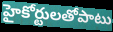
హైకోర్టులతోపాటు